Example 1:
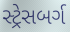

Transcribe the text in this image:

સ્ટ્રેસબર્ગ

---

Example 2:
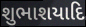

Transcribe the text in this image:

શુભાશયાદિ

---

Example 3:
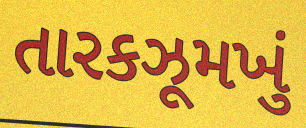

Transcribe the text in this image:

તારકઝૂમખું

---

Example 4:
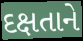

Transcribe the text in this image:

દક્ષતાને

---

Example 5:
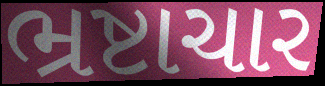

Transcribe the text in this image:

ભ્રષ્ટાચાર